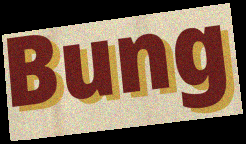
Bung